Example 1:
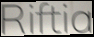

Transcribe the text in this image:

Riftia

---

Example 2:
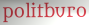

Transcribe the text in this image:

politburo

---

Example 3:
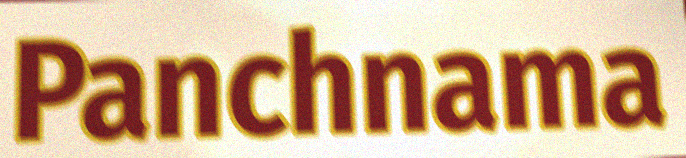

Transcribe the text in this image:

Panchnama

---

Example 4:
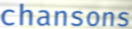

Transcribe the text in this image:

chansons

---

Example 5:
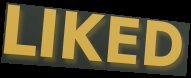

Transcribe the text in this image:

LIKED